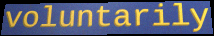
voluntarily